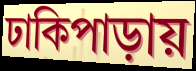
ঢাকিপাড়ায়